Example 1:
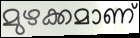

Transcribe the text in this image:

മുഴക്കമാണ്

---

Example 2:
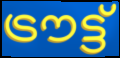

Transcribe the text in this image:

ട്രൗട്ട്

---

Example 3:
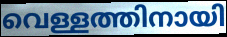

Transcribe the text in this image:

വെള്ളത്തിനായി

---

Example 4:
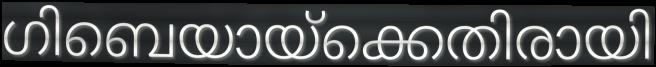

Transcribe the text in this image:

ഗിബെയായ്ക്കെതിരായി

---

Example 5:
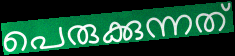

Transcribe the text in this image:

പെരുക്കുന്നത്